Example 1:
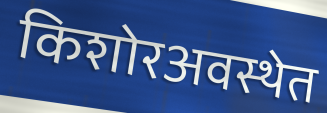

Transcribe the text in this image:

किशोरअवस्थेत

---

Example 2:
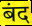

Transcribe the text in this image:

बंद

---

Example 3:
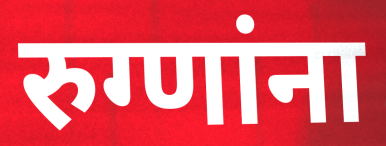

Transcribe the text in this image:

रुग्णांना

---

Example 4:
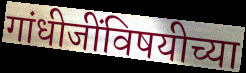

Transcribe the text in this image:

गांधीजींविषयीच्या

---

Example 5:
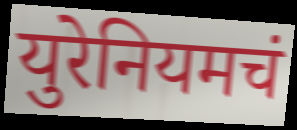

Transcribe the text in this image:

युरेनियमचं